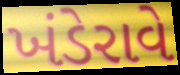
ખંડેરાવે